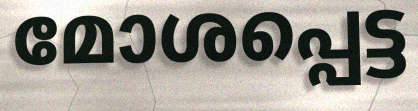
മോശപ്പെട്ട